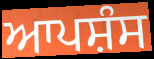
ਆਪਸ਼ੰਸ